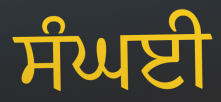
ਸੰਘਈ